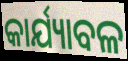
କାର୍ଯ୍ୟାବଳ